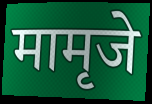
मामृजे